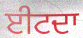
ਈਟਦਾ